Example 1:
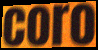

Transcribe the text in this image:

coro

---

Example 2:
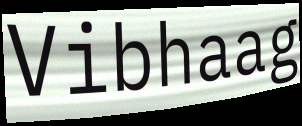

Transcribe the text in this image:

Vibhaag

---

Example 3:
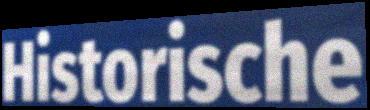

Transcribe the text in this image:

Historische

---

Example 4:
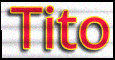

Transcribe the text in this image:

Tito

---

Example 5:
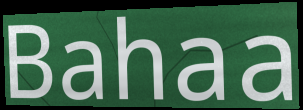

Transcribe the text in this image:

Bahaa